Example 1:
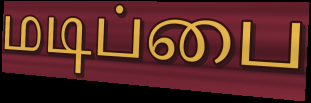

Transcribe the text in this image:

மடிப்பை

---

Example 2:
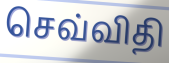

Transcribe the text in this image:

செவ்விதி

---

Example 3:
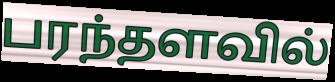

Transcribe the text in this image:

பரந்தளவில்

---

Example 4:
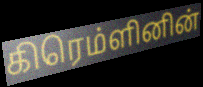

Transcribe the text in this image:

கிரெம்ளினின்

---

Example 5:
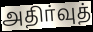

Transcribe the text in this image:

அதிர்வுத்